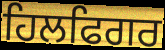
ਹਿਲਫਿਗਰ